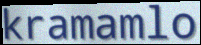
kramamlo